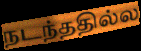
நடந்ததில்ல